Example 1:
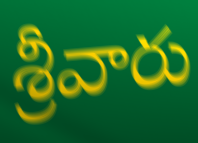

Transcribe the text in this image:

శ్రీవారు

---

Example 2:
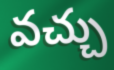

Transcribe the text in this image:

వచ్చు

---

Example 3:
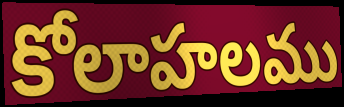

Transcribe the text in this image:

కోలాహలము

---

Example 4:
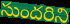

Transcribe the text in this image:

సుందరిని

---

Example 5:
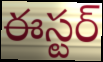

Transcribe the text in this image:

ఈస్టర్